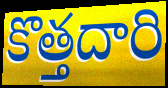
కొత్తదారి